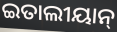
ଇତାଲୀୟାନ୍